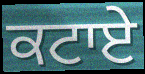
ਕਟਾਏ